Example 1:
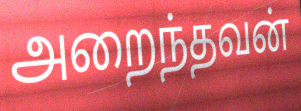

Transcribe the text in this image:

அறைந்தவன்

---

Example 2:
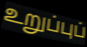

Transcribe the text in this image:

உறுப்புப்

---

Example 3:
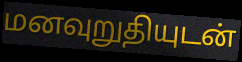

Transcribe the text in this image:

மனவுறுதியுடன்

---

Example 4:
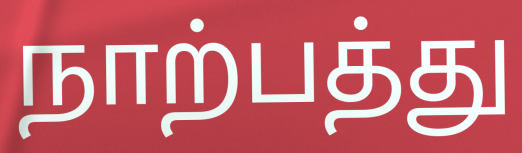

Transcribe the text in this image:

நாற்பத்து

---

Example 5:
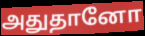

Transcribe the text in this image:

அதுதானோ